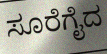
ಸೂರೆಗೈದ